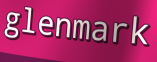
glenmark